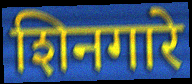
शिनगारे